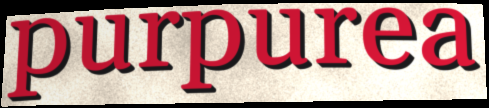
purpurea